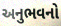
અનુભવનો